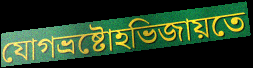
যোগভ্রষ্টোহভিজায়তে